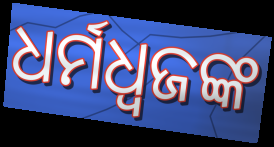
ଧର୍ମଧ୍ୱଜଙ୍କ